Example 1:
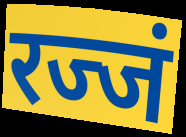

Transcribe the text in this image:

रज्जं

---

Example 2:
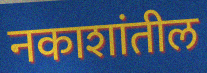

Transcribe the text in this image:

नकाशांतील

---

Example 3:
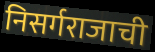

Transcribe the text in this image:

निसर्गराजाची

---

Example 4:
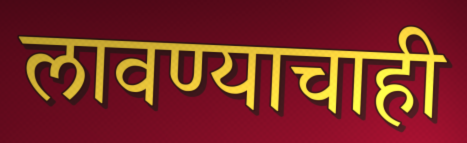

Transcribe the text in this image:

लावण्याचाही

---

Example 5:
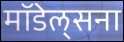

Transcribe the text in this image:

मॉडेल्सना